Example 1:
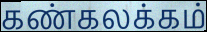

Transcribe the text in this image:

கண்கலக்கம்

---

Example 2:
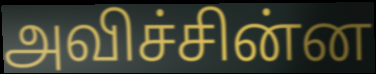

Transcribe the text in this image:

அவிச்சின்ன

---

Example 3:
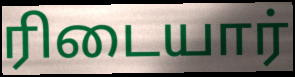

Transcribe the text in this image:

ரிடையார்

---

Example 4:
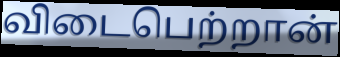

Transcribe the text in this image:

விடைபெற்றான்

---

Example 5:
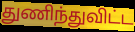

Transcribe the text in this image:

துணிந்துவிட்ட